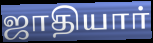
ஜாதியார்